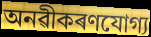
অনৱীকৰণযোগ্য